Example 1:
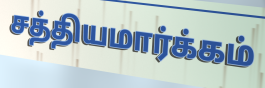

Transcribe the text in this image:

சத்தியமார்க்கம்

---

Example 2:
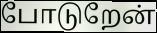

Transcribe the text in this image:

போடுறேன்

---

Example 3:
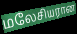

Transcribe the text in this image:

மலேசியரான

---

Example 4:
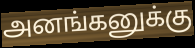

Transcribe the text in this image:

அனங்கனுக்கு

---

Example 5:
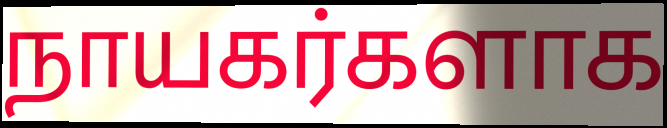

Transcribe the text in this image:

நாயகர்களாக